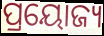
ପ୍ରୟୋଜ୍ୟ